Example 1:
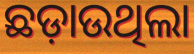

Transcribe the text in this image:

ଛଡ଼ାଉଥିଲା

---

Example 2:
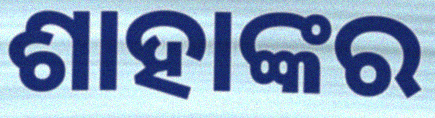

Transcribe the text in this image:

ଶାହାଙ୍କର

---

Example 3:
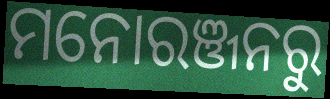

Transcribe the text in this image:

ମନୋରଞ୍ଜନରୁ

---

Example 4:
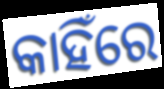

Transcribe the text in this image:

କାହିଁରେ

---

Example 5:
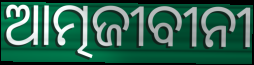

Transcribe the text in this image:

ଆତ୍ମଜୀବୀନୀ